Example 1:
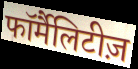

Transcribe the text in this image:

फॉर्मैलिटीज़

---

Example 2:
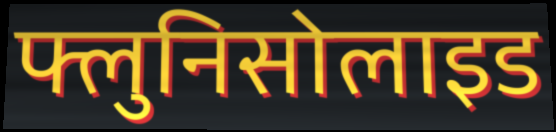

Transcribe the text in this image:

फ्लुनिसोलाइड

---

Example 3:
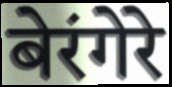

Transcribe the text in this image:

बेरंगेरे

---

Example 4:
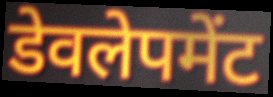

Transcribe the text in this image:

डेवलेपमेंट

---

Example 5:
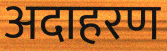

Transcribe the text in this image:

अदाहरण